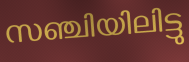
സഞ്ചിയിലിട്ടു